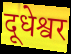
दूधेश्वर